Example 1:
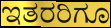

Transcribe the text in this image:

ಇತರರಿಗೂ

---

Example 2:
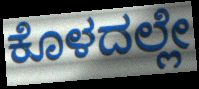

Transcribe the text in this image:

ಕೊಳದಲ್ಲೇ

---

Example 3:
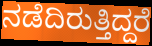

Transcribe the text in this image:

ನಡೆದಿರುತ್ತಿದ್ದರೆ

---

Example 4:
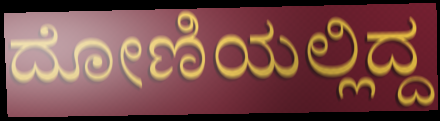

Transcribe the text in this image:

ದೋಣಿಯಲ್ಲಿದ್ದ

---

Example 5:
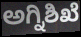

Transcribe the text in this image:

ಅಗ್ನಿಶಿಖೆ